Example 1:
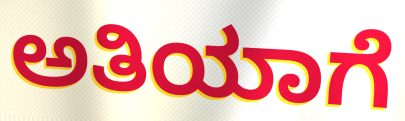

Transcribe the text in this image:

ಅತಿಯಾಗೆ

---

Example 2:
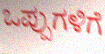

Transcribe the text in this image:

ಒಪ್ಪುಗಳಿಗೆ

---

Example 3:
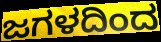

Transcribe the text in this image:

ಜಗಳದಿಂದ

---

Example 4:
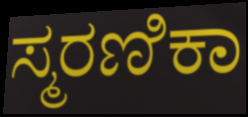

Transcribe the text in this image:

ಸ್ಮರಣಿಕಾ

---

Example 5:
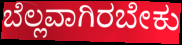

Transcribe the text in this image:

ಬೆಲ್ಲವಾಗಿರಬೇಕು